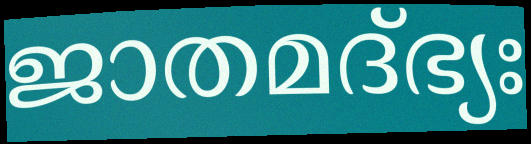
ജാതമദ്ഭ്യഃ